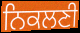
ਨਿਕਲਣੀ